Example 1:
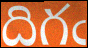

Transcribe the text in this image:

దిగఁ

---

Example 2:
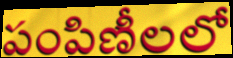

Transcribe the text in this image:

పంపిణీలలో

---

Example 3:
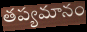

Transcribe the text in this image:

తప్యమానం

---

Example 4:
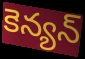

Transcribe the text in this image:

కెన్యన్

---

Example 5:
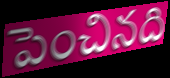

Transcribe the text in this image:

పెంచినది